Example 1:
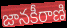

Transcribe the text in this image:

జానకీరాణి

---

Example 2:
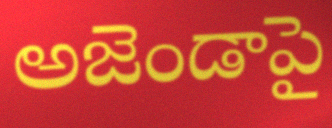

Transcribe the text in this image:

అజెండాపై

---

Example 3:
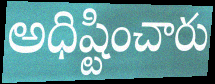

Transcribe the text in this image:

అధిష్టించారు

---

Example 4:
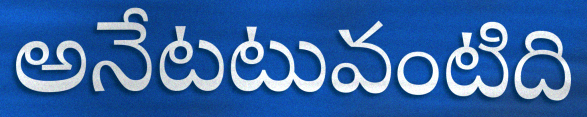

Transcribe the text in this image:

అనేటటువంటిది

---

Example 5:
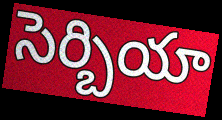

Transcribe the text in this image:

సెర్బియా